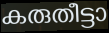
കരുതീട്ടാ